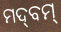
ମଦ୍‌ବମ୍